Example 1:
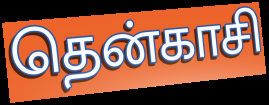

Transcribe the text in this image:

தென்காசி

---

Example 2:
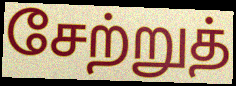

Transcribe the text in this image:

சேற்றுத்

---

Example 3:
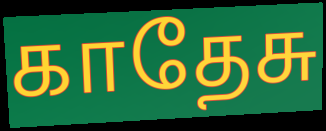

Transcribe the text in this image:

காதேசு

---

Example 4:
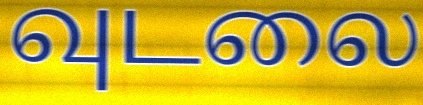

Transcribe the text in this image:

வுடலை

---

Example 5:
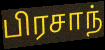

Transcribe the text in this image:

பிரசாந்